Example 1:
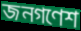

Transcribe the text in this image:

জনগণেশ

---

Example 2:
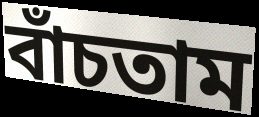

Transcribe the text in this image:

বাঁচতাম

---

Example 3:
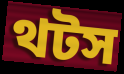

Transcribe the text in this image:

থটস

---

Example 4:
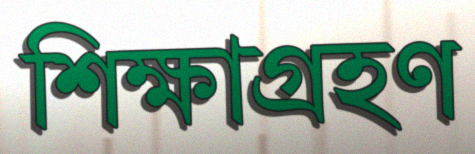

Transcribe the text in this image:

শিক্ষাগ্রহণ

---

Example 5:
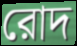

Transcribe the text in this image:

রোদ